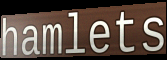
hamlets